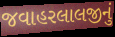
જવાહરલાલજીનું